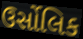
ઉર્સોલિક